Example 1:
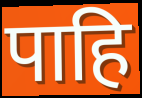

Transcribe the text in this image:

पाहि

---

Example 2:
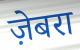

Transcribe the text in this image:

ज़ेबरा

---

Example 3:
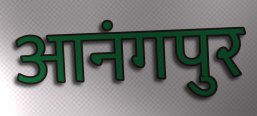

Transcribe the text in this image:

आनंगपुर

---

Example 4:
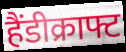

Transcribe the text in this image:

हैंडीक्राफ्ट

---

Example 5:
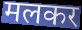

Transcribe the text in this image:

मलकर